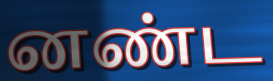
னண்ட